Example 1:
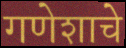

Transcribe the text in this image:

गणेशाचे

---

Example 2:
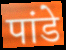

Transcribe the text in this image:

पांडे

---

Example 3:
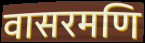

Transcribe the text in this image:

वासरमणि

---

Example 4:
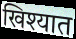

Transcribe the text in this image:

खिश्यात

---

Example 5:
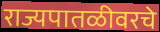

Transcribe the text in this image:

राज्यपातळीवरचे